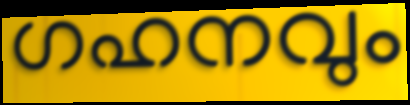
ഗഹനവും